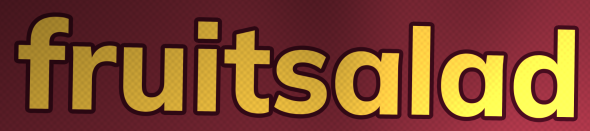
fruitsalad